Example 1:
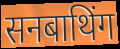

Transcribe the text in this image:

सनबाथिंग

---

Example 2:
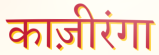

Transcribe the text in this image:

काज़ीरंगा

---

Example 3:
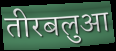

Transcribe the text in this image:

तीरबलुआ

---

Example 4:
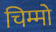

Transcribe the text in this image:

चिम्मो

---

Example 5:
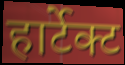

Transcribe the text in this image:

हार्टेक्ट